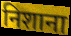
निशाना